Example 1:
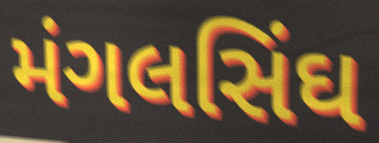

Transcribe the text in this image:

મંગલસિંઘ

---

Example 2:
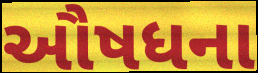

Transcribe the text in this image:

ઔષધના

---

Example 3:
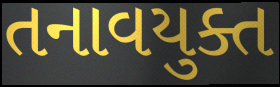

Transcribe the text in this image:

તનાવયુક્ત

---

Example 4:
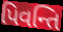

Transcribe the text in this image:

પિવન્તિ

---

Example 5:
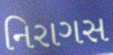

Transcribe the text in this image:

નિરાગસ